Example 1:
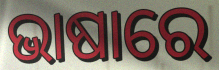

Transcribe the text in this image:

ଭାଷାରେ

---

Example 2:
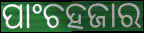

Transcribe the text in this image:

ପାଂଚହଜାର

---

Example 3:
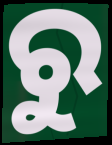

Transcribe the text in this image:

ରୁ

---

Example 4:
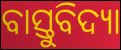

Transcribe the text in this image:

ବାସ୍ତୁବିଦ୍ୟା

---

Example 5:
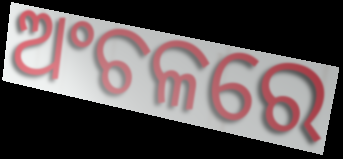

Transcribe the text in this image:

ଅଂଚଳରେ